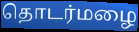
தொடர்மழை